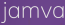
jamva